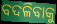
ବଦଳିବାକୁ